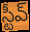
స్టీవ్